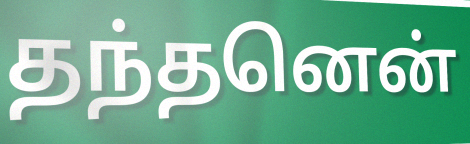
தந்தனென்